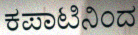
ಕಪಾಟಿನಿಂದ